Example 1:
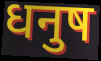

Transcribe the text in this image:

धनुष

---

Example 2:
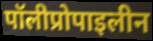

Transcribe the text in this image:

पॉलीप्रोपाइलीन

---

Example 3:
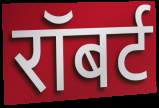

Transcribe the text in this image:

रॉबर्ट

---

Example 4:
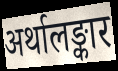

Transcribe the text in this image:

अर्थालङ्कार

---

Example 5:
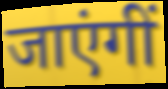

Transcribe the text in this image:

जाएंगीं